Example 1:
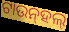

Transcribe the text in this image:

ଟାଉନ୍‌ହଲ୍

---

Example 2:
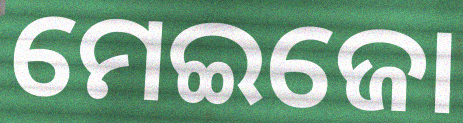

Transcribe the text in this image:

ମେଇଜୋ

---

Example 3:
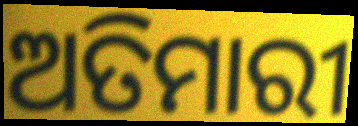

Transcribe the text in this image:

ଅତିମାରୀ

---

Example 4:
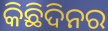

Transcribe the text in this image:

କିଛିଦିନର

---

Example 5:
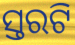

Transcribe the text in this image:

ସ୍ତରଟି